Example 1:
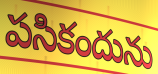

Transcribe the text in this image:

పసికందును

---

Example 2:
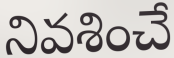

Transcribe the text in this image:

నివశించే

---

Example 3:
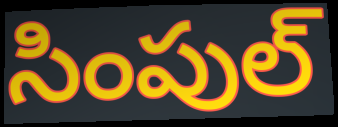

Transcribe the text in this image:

సింపుల్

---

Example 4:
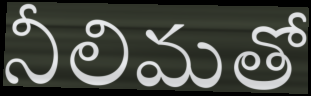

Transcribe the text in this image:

నీలిమతో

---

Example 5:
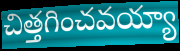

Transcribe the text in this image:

చిత్తగించవయ్యా